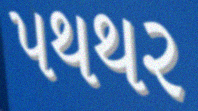
પથથર